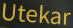
Utekar